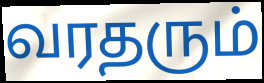
வரதரும்